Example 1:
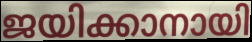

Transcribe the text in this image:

ജയിക്കാനായി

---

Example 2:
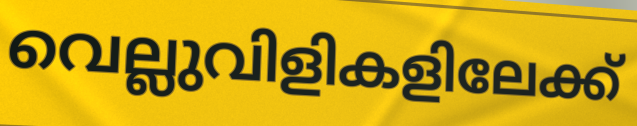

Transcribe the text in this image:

വെല്ലുവിളികളിലേക്ക്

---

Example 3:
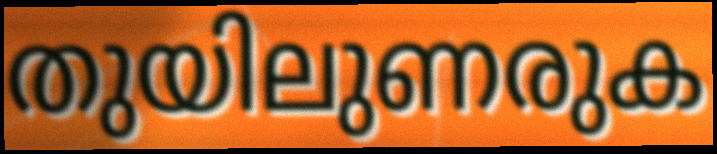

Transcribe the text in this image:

തുയിലുണരുക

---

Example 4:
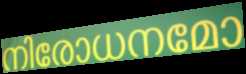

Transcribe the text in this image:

നിരോധനമോ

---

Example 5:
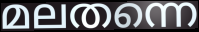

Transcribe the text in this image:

മലതന്നെ